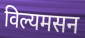
विल्यमसन